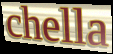
chella